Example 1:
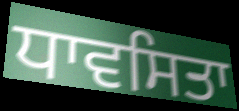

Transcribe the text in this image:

ਧਾਵਸਿਤਾ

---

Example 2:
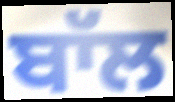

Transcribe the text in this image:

ਬਾੱਲ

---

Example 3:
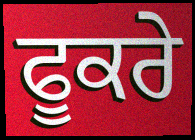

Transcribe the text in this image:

ਫੂਕਰੇ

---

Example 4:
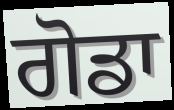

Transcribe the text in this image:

ਗੋਡਾ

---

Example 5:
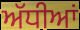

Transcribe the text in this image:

ਅੱਧੀਆਂ